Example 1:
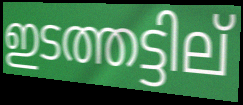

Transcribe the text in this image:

ഇടത്തട്ടില്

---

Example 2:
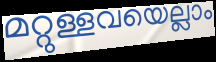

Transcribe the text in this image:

മറ്റുള്ളവയെല്ലാം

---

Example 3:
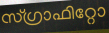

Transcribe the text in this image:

സ്ഗ്രാഫിറ്റോ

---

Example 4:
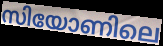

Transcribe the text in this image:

സിയോണിലെ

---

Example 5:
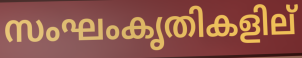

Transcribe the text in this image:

സംഘംകൃതികളില്